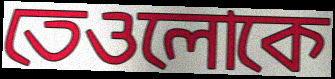
তেওলোকে